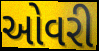
ઓવરી